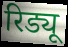
रिड्यू